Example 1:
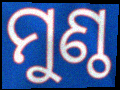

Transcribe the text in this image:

ମୁଣ୍ଠ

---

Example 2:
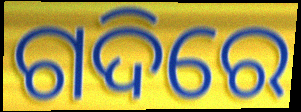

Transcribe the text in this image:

ଗଦିରେ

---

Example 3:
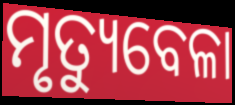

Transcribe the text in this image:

ମୃତ୍ୟୁବେଳା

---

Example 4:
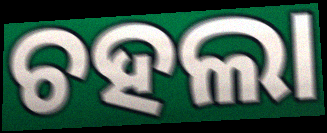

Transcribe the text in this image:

ଚହଲା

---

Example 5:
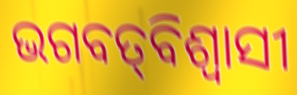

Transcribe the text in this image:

ଭଗବତ୍‌ବିଶ୍ଵାସୀ